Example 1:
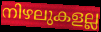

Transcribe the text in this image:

നിഴലുകളല്ല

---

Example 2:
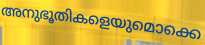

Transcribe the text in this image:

അനുഭൂതികളെയുമൊക്കെ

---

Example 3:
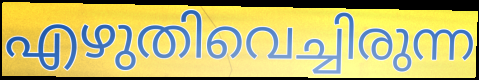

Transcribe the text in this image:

എഴുതിവെച്ചിരുന്ന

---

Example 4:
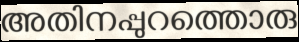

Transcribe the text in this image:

അതിനപ്പുറത്തൊരു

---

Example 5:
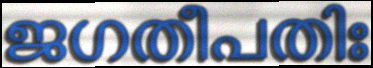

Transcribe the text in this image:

ജഗതീപതിഃ